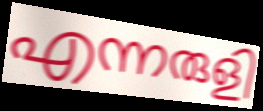
എന്നരുളി